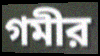
গমীর